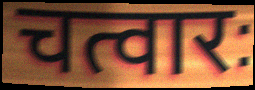
चत्वारः